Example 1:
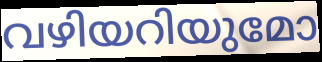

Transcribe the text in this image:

വഴിയറിയുമോ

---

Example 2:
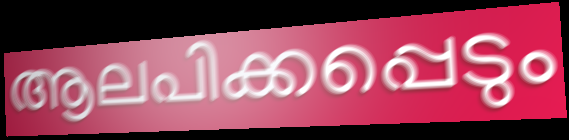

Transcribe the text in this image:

ആലപിക്കപ്പെടും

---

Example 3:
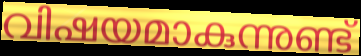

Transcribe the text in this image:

വിഷയമാകുന്നുണ്ട്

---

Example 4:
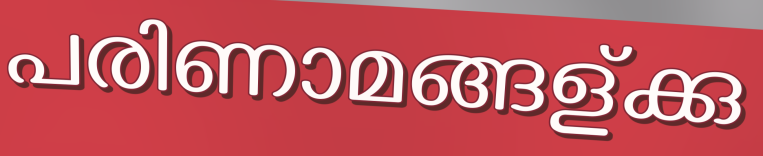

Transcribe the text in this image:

പരിണാമങ്ങള്ക്കു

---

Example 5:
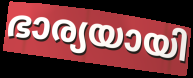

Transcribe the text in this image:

ഭാര്യയായി